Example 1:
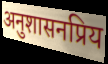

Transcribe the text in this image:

अनुशासनप्रिय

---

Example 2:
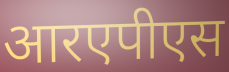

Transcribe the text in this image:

आरएपीएस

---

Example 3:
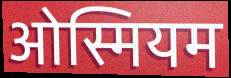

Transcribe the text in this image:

ओस्मियम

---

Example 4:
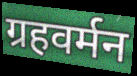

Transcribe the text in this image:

ग्रहवर्मन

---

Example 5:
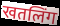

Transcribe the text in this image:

खतलिंग